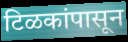
टिळकांपासून